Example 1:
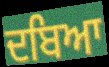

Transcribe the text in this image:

ਦਬਿਆ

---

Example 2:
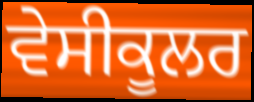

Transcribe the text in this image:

ਵੇਸੀਕੂਲਰ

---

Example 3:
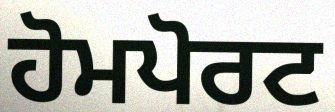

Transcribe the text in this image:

ਹੋਮਪੋਰਟ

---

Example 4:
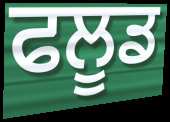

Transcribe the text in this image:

ਫਲੂਡ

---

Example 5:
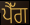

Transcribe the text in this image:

ਪੈੱਗ